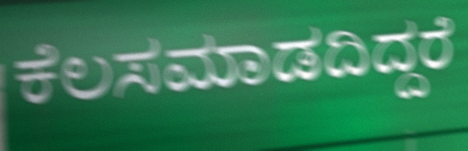
ಕೆಲಸಮಾಡದಿದ್ದರೆ